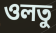
ওলতু